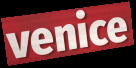
venice